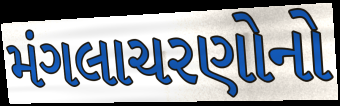
મંગલાચરણોનો